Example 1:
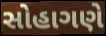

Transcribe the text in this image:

સોહાગણે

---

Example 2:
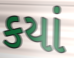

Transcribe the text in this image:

કયાં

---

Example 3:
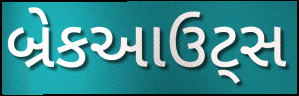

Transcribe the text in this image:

બ્રેકઆઉટ્સ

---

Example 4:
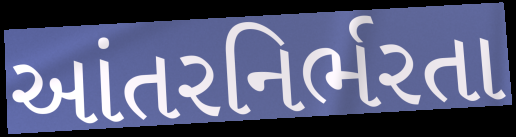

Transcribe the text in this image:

આંતરનિર્ભરતા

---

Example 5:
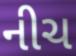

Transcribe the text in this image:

નીચ